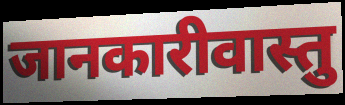
जानकारीवास्तु